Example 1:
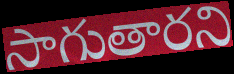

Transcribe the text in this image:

సాగుతారని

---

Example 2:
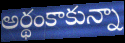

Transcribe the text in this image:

అర్థంకాకున్నా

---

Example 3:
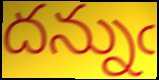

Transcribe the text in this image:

దన్నుఁ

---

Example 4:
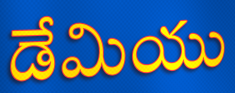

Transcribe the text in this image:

డేమియు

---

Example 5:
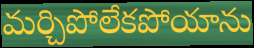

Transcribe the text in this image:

మర్చిపోలేకపోయాను